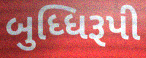
બુધ્ધિરૂપી